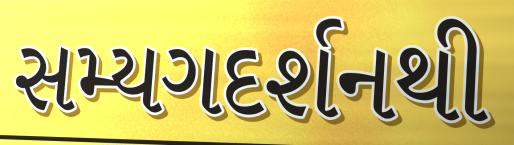
સમ્યગદર્શનથી